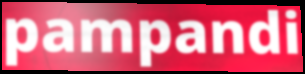
pampandi